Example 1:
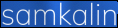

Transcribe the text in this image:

samkalin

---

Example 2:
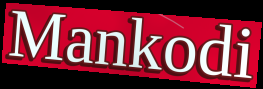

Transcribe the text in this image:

Mankodi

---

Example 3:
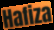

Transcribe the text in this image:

Hafiza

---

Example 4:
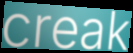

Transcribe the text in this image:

creak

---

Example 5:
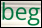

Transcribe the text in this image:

beg